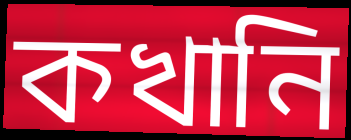
কখানি